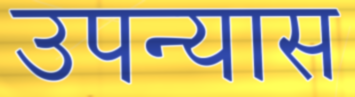
उपन्यास